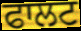
ਫਾਲਟ